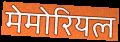
मेमोरियल